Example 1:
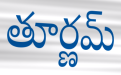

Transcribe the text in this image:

తూర్ణమ్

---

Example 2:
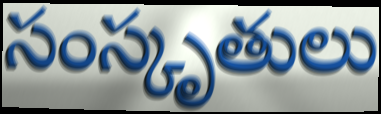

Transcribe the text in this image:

సంస్కృతులు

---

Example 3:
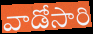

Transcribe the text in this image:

వాడోసారి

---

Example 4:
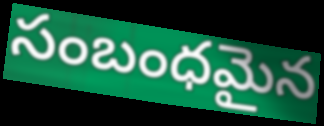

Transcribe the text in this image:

సంబంధమైన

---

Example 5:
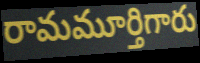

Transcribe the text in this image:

రామమూర్తిగారు